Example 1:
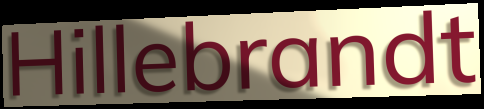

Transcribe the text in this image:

Hillebrandt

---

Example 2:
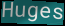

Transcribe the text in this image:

Huges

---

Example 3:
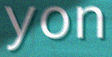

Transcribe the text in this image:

yon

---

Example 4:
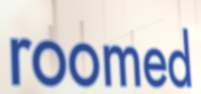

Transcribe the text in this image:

roomed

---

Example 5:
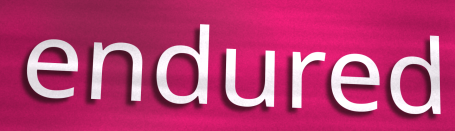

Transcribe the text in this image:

endured